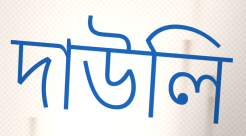
দাউলি